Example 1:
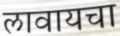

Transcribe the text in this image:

लावायचा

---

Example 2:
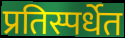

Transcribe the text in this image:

प्रतिस्पर्धेत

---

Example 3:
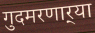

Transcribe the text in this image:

गुदमरणार्या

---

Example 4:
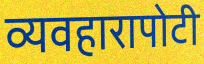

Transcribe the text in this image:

व्यवहारापोटी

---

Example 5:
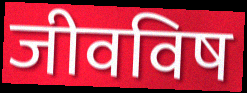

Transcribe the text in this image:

जीवविष